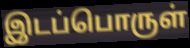
இடப்பொருள்